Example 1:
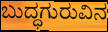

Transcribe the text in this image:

ಬುದ್ಧಗುರುವಿನ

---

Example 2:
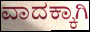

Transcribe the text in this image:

ವಾದಕ್ಕಾಗಿ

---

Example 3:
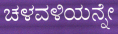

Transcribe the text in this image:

ಚಳವಳಿಯನ್ನೇ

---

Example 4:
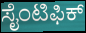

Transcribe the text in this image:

ಸೈಂಟಿಫಿಕ್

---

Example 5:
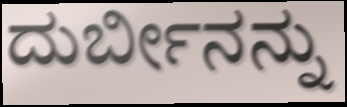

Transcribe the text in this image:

ದುರ್ಬೀನನ್ನು